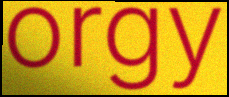
orgy